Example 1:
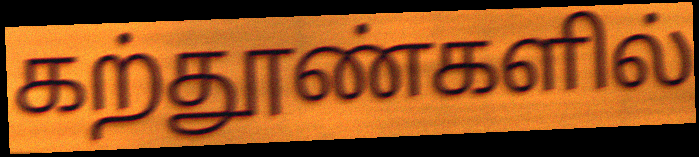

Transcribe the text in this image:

கற்தூண்களில்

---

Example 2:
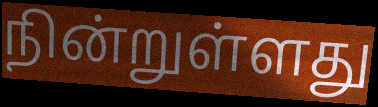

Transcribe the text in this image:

நின்றுள்ளது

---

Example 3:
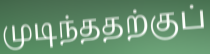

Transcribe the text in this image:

முடிந்ததற்குப்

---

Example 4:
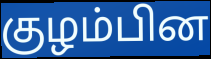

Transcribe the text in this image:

குழம்பின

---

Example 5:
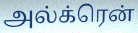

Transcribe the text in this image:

அல்க்ரென்